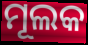
ମୂଲକ